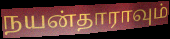
நயன்தாராவும்